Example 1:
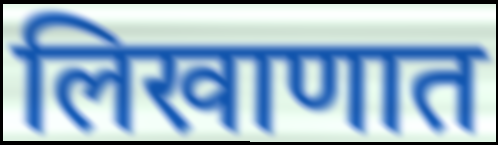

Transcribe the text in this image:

लिखाणात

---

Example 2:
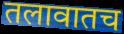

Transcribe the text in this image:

तलावातच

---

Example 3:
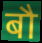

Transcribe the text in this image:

बौ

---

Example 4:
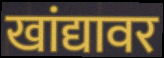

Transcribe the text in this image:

खांद्यावर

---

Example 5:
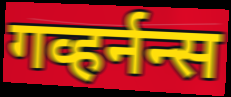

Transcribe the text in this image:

गव्हर्नन्स